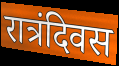
रात्रंदिवस